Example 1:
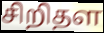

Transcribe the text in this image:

சிறிதள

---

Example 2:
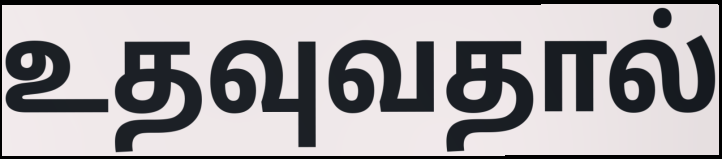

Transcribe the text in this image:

உதவுவதால்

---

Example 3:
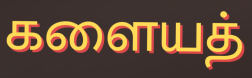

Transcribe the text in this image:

களையத்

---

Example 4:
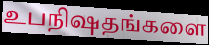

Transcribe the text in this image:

உபநிஷதங்களை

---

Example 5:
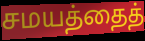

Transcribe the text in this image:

சமயத்தைத்